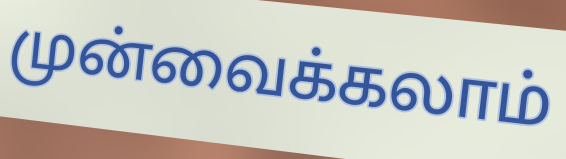
முன்வைக்கலாம்